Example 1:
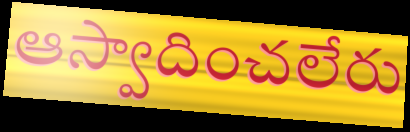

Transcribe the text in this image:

ఆస్వాదించలేరు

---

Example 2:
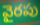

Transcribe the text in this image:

వైరపు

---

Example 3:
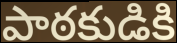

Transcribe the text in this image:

పాఠకుడికి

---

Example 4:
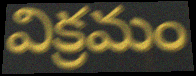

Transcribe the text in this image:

విక్రమం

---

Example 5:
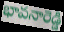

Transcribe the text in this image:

భావనారెడ్డి